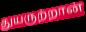
துயருற்றான்